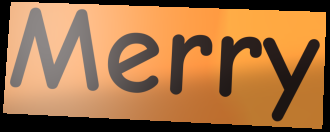
Merry